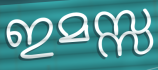
ഇമസ്സ